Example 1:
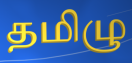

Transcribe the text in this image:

தமிழு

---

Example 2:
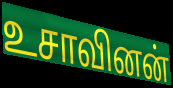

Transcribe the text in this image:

உசாவினன்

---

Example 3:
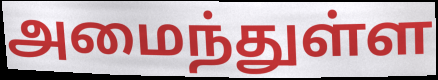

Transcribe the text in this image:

அமைந்துள்ள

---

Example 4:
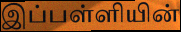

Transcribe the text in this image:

இப்பள்ளியின்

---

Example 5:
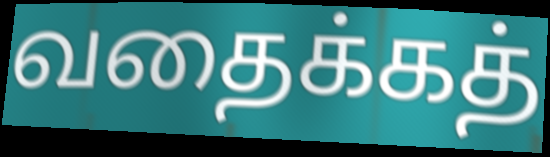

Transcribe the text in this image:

வதைக்கத்